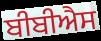
ਬੀਬੀਐਸ